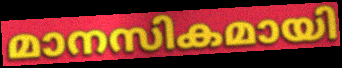
മാനസികമായി